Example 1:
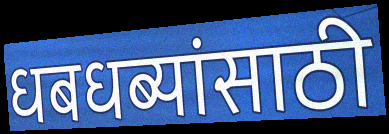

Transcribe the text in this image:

धबधब्यांसाठी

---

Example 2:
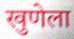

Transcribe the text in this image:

खुणेला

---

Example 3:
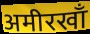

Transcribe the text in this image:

अमीरखाँ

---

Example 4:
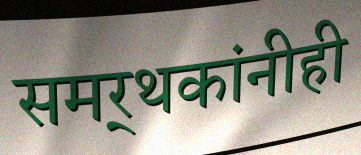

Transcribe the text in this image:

समर्थकांनीही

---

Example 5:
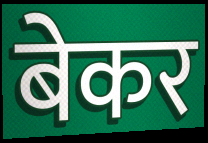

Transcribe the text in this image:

बेकर